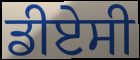
ਡੀਏਸੀ